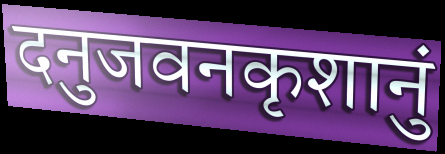
दनुजवनकृशानुं